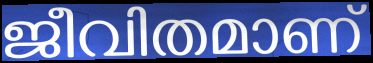
ജീവിതമാണ്